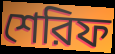
শেরিফ